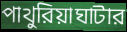
পাথুরিয়াঘাটার